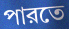
পারতে